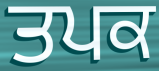
ਤਪਕ